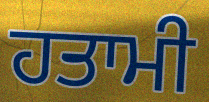
ਹਤਾਮੀ